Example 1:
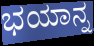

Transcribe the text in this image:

ಭಯಾನ್ನ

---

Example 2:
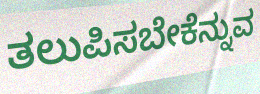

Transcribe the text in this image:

ತಲುಪಿಸಬೇಕೆನ್ನುವ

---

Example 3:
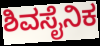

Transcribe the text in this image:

ಶಿವಸೈನಿಕ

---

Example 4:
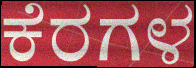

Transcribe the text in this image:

ಕೆರಗಳ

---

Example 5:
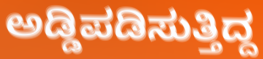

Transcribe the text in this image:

ಅಡ್ಡಿಪಡಿಸುತ್ತಿದ್ದ